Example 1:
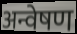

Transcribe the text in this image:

अन्वेषण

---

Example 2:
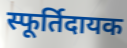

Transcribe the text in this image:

स्फूर्तिदायक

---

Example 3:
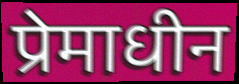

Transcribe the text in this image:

प्रेमाधीन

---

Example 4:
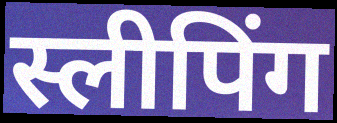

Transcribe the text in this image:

स्लीपिंग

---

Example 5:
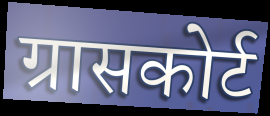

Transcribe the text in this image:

ग्रासकोर्ट